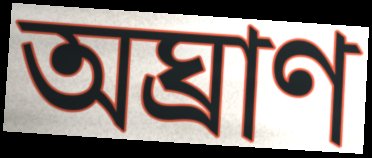
অঘ্রাণ